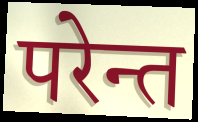
परेन्त